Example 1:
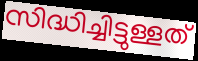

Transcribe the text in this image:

സിദ്ധിച്ചിട്ടുള്ളത്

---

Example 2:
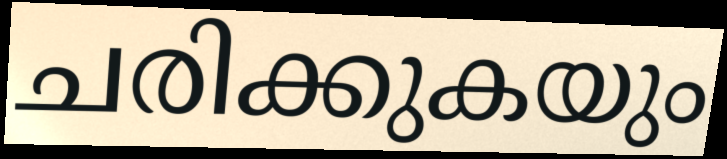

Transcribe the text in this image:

ചരിക്കുകയും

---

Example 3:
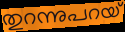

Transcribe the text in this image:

തുറന്നുപറയ്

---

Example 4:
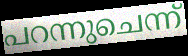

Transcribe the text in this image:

പറന്നുചെന്ന്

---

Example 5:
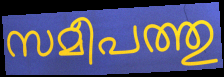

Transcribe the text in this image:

സമീപത്തു